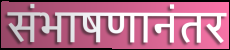
संभाषणानंतर